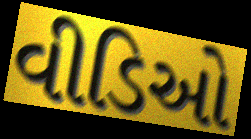
વીડિઓ